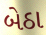
બેઠા